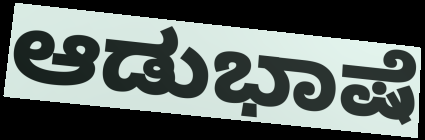
ಆಡುಭಾಷೆ